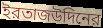
ইরতাজউদিনের